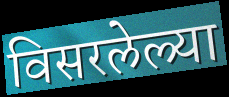
विसरलेल्या